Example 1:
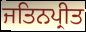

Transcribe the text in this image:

ਜਤਿਨਪ੍ਰੀਤ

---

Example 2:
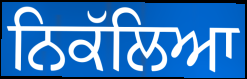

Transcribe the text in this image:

ਨਿਕੱਲਿਆ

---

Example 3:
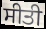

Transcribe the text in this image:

ਸੀਤੀ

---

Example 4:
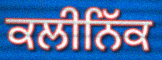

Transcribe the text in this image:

ਕਲੀਨਿੱਕ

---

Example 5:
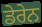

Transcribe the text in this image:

ਡੇਰੇਨ